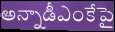
అన్నాడీఎంకేపై